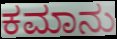
ಕಮಾನು